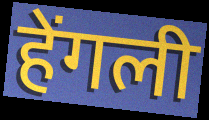
हेंगली